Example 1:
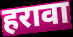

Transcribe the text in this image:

हरावा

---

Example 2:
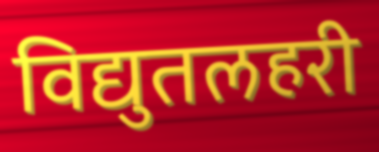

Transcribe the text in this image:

विद्युतलहरी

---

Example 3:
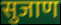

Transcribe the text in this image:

सुजाण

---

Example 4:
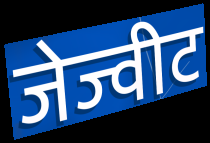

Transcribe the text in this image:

जेज्वीट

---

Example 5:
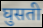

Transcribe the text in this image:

घुसती